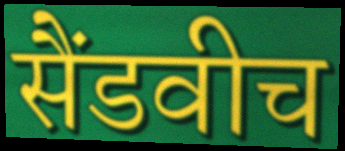
सैंडवीच